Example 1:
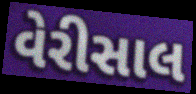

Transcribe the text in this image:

વેરીસાલ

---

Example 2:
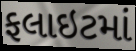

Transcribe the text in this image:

ફલાઇટમાં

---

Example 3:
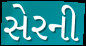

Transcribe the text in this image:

સેરની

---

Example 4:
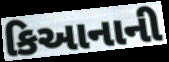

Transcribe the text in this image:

કિઆનાની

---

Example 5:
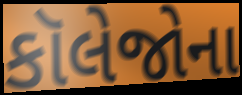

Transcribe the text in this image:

કૉલેજોના